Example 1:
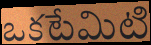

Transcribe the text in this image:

ఒకటేమిటి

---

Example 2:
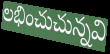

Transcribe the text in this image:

లభించుచున్నవి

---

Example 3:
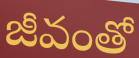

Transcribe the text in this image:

జీవంతో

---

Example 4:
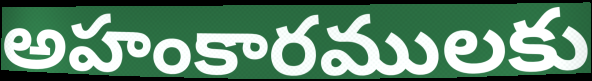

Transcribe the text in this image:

అహంకారములకు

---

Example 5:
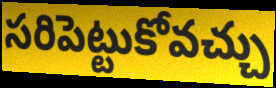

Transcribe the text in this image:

సరిపెట్టుకోవచ్చు